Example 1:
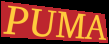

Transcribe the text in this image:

PUMA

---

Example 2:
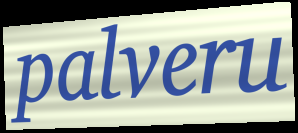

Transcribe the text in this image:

palveru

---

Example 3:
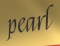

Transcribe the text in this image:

pearl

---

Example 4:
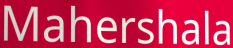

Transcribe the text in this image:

Mahershala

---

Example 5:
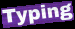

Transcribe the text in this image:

Typing